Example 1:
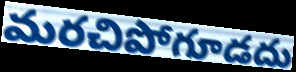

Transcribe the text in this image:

మరచిపోగూడదు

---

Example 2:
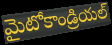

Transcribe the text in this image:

మైటోకాండ్రియల్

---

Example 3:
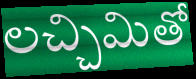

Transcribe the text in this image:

లచ్చిమితో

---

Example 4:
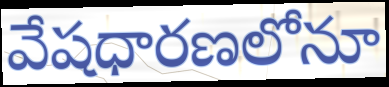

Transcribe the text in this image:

వేషధారణలోనూ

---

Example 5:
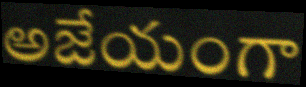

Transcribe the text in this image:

అజేయంగా